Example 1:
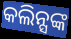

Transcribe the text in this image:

କଲିନ୍ସଙ୍କ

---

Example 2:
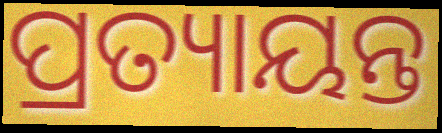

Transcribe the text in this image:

ପ୍ରତ୍ୟାୟନ୍ତ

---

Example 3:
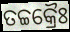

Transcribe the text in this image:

ତଚ୍ଚକ୍ରୈଃ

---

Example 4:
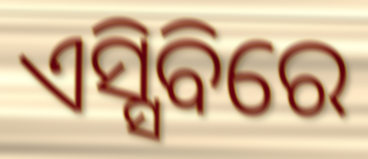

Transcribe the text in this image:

ଏସ୍ସିବିରେ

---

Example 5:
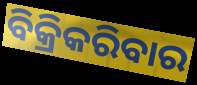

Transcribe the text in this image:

ବିକ୍ରିକରିବାର